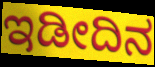
ಇಡೀದಿನ